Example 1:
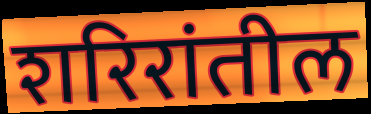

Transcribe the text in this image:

शरिरांतील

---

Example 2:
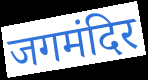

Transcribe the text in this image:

जगमंदिर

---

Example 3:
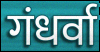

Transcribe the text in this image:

गंधर्वा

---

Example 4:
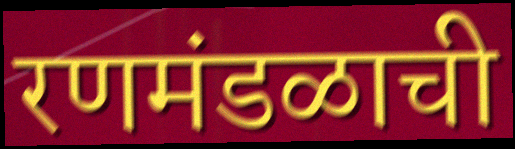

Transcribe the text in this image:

रणमंडळाची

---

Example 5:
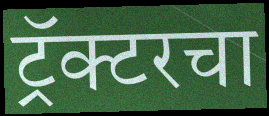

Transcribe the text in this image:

ट्रॅक्टरचा